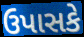
ઉપાસકે